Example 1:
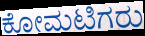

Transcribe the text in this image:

ಕೋಮಟಿಗರು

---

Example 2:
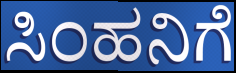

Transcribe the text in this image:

ಸಿಂಹನಿಗೆ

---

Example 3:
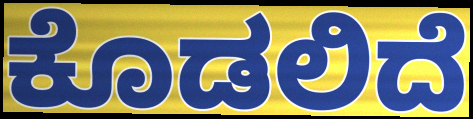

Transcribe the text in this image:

ಕೊಡಲಿದೆ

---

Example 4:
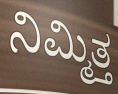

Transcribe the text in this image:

ನಿಮ್ಮಿತ್ತ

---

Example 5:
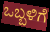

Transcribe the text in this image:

ಒಬ್ಬಳಿಗೆ